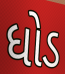
ધોડ